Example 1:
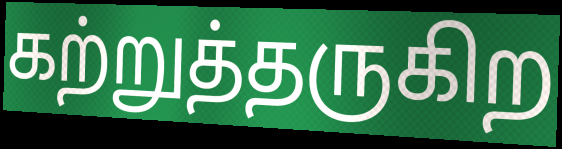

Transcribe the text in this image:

கற்றுத்தருகிற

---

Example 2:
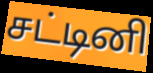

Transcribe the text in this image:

சட்டினி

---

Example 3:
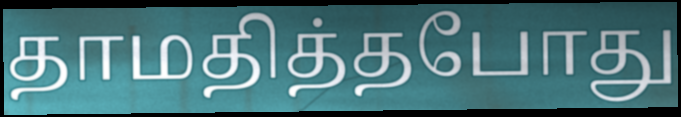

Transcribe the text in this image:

தாமதித்தபோது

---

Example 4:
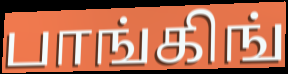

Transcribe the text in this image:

பாங்கிங்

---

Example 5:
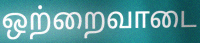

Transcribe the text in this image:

ஒற்றைவாடை